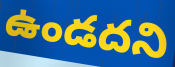
ఉండదని